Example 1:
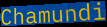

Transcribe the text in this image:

Chamundi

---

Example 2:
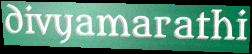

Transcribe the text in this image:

divyamarathi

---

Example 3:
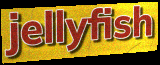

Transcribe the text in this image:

jellyfish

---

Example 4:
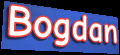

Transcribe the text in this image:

Bogdan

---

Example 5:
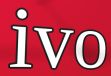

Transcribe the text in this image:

ivo